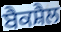
ਬੈਕਸ਼ੈਲ